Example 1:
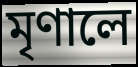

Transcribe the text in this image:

মৃণালে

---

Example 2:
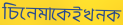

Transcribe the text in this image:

চিনেমাকেইখনক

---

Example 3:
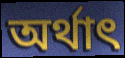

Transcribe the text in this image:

অৰ্থাৎ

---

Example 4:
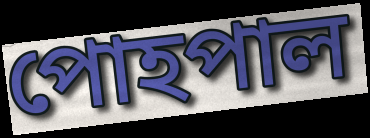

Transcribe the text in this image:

পোহপাল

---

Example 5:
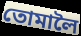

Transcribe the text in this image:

তোমালৈ